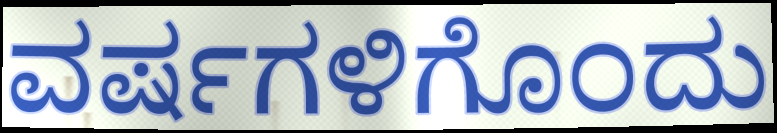
ವರ್ಷಗಳಿಗೊಂದು